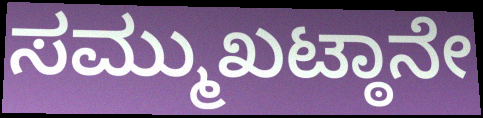
ಸಮ್ಮುಖಟ್ಠಾನೇ